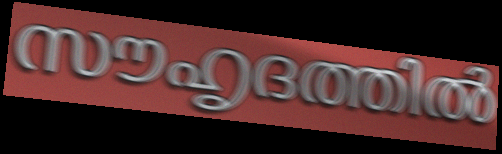
സൗഹൃദത്തിൽ